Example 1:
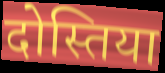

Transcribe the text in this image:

दोस्तिया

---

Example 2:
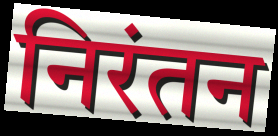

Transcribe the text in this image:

निरंतन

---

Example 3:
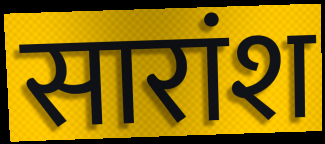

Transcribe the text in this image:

सारांश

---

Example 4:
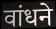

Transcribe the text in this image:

वांधने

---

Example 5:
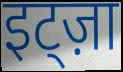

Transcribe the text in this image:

इट्ज़ा